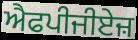
ਐਫਪੀਜੀਏਜ਼